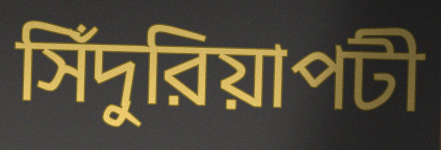
সিঁদুরিয়াপটী